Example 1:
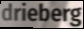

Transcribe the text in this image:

drieberg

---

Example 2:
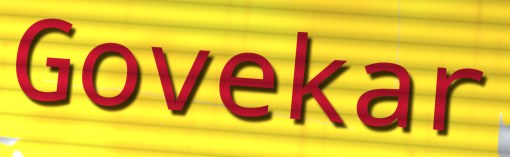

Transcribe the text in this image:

Govekar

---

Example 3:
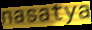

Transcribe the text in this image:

nasatya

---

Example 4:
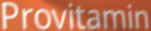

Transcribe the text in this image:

Provitamin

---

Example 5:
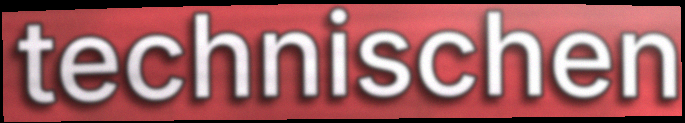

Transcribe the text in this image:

technischen